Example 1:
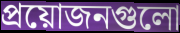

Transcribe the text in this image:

প্রয়োজনগুলো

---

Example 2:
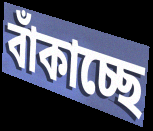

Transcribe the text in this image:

বাঁকাচ্ছে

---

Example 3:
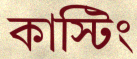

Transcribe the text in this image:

কাস্টিং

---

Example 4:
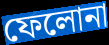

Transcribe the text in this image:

ফেলোনা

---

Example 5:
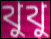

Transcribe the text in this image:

থুথু